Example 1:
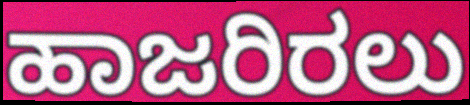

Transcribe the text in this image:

ಹಾಜರಿರಲು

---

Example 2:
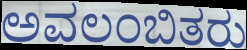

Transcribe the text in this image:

ಅವಲಂಬಿತರು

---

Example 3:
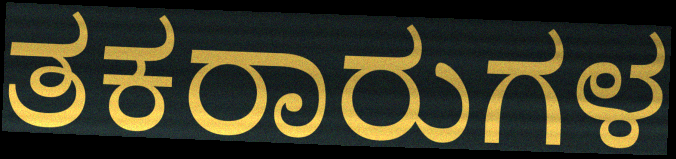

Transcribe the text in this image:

ತಕರಾರುಗಳ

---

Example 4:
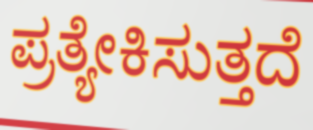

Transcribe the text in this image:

ಪ್ರತ್ಯೇಕಿಸುತ್ತದೆ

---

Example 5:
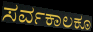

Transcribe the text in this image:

ಸರ್ವಕಾಲಕೂ